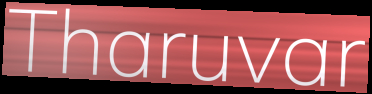
Tharuvar